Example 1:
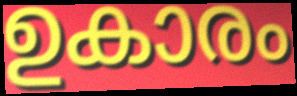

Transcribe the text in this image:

ഉകാരം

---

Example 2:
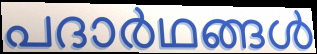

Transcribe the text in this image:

പദാർഥങ്ങൾ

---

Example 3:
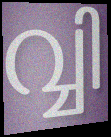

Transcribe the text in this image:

വ്വി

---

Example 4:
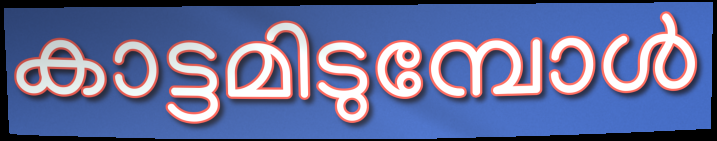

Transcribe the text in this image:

കാട്ടമിടുമ്പോൾ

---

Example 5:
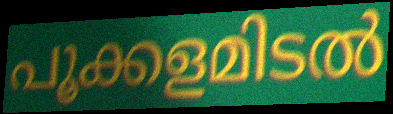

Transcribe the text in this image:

പൂക്കളമിടൽ